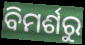
ବିମର୍ଶରୁ